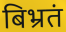
बिभ्रतं